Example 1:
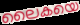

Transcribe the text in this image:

ലൈകയെ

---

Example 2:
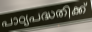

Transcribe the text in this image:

പാഠ്യപദ്ധതിക്ക്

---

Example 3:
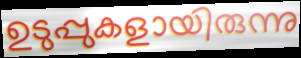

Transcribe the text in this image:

ഉടുപ്പുകളായിരുന്നു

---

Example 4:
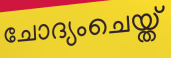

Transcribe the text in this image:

ചോദ്യംചെയ്ത്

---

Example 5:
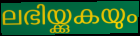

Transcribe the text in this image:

ലഭിയ്ക്കുകയും